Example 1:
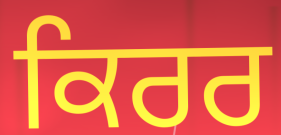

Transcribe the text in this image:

ਕਿਰਰ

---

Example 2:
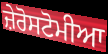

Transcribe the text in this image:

ਜ਼ੇਰੋਸਟੋਮੀਆ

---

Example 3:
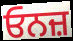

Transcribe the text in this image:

ਓਨਜ਼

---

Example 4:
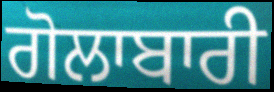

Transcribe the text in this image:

ਗੋਲਾਬਾਰੀ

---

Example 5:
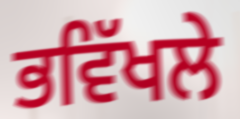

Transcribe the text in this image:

ਭਵਿੱਖਲੇ